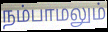
நம்பாமலும்